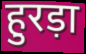
हुरड़ा